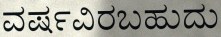
ವರ್ಷವಿರಬಹುದು